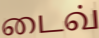
டைவ்